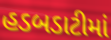
હડબડાટીમાં